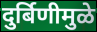
दुर्बिणीमुळे